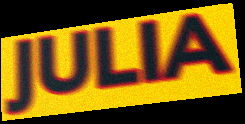
JULIA